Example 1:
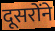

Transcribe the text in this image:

दूसरोंने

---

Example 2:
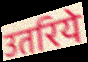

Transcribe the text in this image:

उतरिये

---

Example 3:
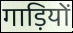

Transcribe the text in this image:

गाड़ियों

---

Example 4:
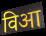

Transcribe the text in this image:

विआ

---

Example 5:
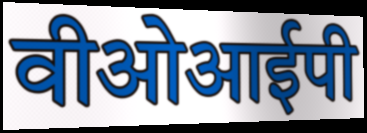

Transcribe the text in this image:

वीओआईपी